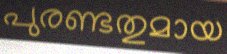
പുരണ്ടതുമായ